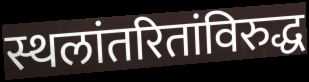
स्थलांतरितांविरुद्ध